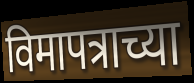
विमापत्राच्या